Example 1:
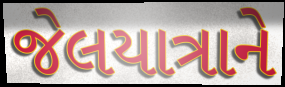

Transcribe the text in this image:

જેલયાત્રાને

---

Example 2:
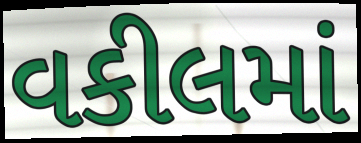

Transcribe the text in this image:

વકીલમાં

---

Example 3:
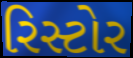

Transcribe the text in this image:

રિસ્ટોર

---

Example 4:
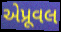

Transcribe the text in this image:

એપ્રૂવલ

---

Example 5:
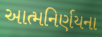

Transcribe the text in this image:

આત્મનિર્ણયના